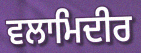
ਵਲਾਮਿਦੀਰ